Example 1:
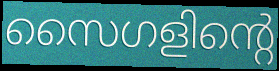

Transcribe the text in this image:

സൈഗളിന്റെ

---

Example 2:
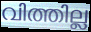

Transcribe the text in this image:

വിത്തില്ല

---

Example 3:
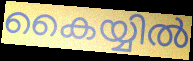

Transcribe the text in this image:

കൈയ്യിൽ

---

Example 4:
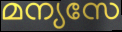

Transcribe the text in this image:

മന്യസേ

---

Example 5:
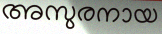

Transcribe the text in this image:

അസുരനായ